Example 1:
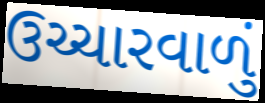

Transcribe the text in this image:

ઉચ્ચારવાળું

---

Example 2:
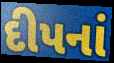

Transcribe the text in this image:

દીપનાં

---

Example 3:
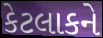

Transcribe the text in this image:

કેટલાકને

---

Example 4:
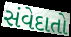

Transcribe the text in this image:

સંવેદાતો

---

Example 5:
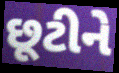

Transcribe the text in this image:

છૂટીને